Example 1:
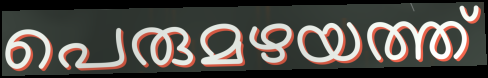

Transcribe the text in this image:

പെരുമഴയത്ത്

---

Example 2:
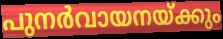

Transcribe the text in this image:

പുനർവായനയ്ക്കും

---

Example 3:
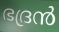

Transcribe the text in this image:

ഭദ്രൻ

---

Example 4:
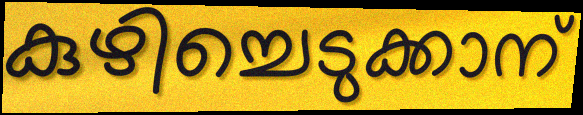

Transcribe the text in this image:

കുഴിച്ചെടുക്കാന്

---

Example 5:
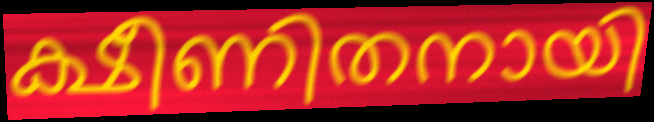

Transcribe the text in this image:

ക്ഷീണിതനായി